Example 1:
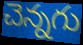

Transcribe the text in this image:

చెన్నగు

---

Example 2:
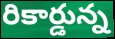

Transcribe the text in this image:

రికార్డున్న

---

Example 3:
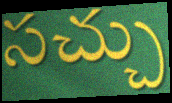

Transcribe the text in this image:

సచ్చు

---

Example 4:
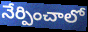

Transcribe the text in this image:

నేర్పించాలో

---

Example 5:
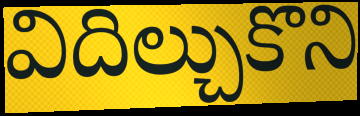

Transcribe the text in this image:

విదిల్చుకొని